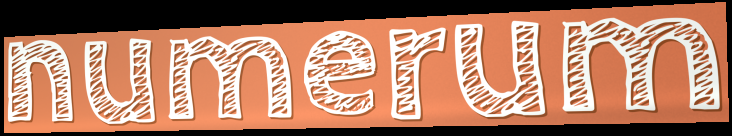
numerum